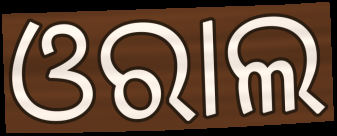
ଓରାଲ